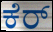
ಕೆರ್